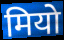
मियो